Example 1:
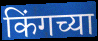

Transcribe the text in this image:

किंगच्या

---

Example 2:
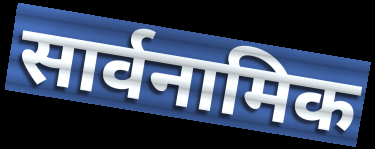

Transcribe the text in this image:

सार्वनामिक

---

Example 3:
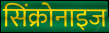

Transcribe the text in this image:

सिंक्रोनाइज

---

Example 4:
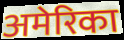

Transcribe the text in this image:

अमेरिका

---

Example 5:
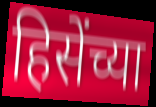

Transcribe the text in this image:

हिसेंच्या